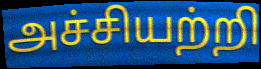
அச்சியற்றி